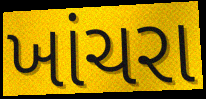
ખાંચરા